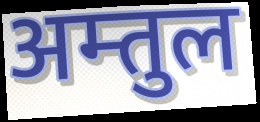
अम्तुल